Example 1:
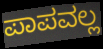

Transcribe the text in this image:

ಪಾಪವಲ್ಲ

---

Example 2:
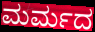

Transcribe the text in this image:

ಮರ್ಮದ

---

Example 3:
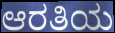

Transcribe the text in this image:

ಆರತಿಯ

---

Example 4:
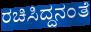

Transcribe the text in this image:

ರಚಿಸಿದ್ದನಂತೆ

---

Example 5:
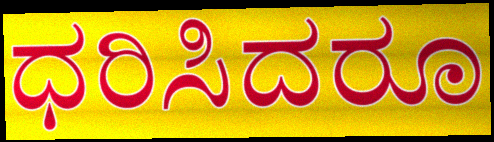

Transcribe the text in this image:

ಧರಿಸಿದರೂ